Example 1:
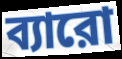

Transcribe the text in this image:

ব্যারো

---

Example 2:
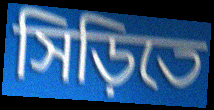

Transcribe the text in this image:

সিড়িতে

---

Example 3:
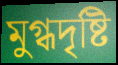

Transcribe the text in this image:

মুগ্ধদৃষ্টি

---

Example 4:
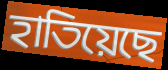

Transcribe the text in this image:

হাতিয়েছে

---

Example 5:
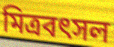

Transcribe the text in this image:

মিত্রবৎসল